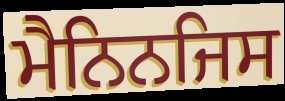
ਮੈਨਿਨਜਿਸ